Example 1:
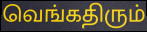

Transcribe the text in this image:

வெங்கதிரும்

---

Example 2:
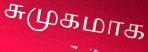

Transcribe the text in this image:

சுமுகமாக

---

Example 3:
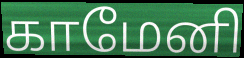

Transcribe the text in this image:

காமேனி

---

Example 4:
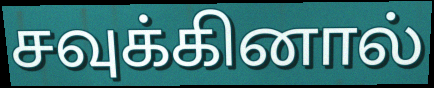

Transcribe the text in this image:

சவுக்கினால்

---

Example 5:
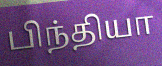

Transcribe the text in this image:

பிந்தியா